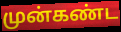
முன்கண்ட